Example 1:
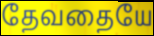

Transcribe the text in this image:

தேவதையே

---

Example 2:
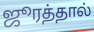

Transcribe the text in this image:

ஜூரத்தால்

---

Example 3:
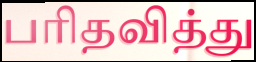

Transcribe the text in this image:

பரிதவித்து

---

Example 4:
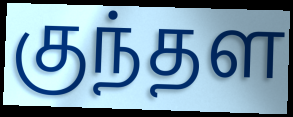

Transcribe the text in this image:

குந்தள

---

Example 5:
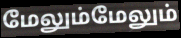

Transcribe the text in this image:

மேலும்மேலும்